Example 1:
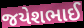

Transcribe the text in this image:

જયેશભાઈ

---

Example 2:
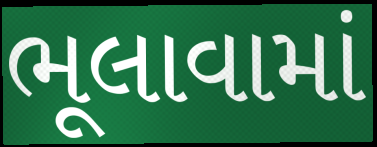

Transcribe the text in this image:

ભૂલાવામાં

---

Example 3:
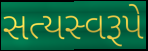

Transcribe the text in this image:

સત્યસ્વરૂપે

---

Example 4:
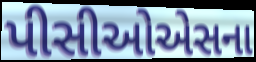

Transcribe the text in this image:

પીસીઓએસના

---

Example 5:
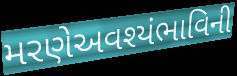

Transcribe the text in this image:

મરણેઅવશ્યંભાવિની